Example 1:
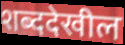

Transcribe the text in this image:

शब्ददेखील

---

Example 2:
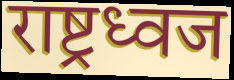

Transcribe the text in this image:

राष्ट्रध्वज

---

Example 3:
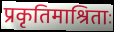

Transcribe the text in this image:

प्रकृतिमाश्रिताः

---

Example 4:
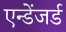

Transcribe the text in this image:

एन्डेंजर्ड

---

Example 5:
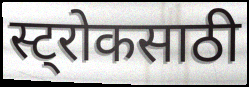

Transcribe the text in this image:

स्ट्रोकसाठी